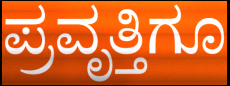
ಪ್ರವೃತ್ತಿಗೂ